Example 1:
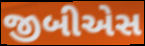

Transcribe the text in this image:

જીબીએસ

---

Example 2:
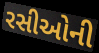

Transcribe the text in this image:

રસીઓની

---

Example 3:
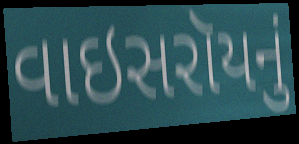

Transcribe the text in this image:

વાઇસરૉયનું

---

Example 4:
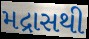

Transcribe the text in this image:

મદ્રાસથી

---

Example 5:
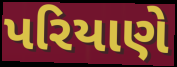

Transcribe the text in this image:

પરિયાણે